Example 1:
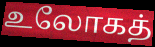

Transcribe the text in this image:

உலோகத்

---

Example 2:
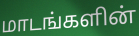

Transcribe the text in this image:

மாடங்களின்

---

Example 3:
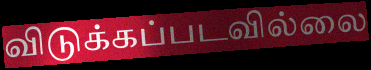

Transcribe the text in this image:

விடுக்கப்படவில்லை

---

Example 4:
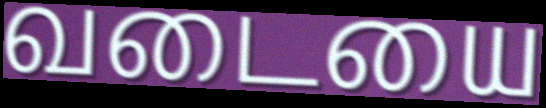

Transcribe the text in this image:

வடையை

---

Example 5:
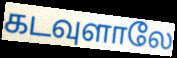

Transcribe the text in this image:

கடவுளாலே